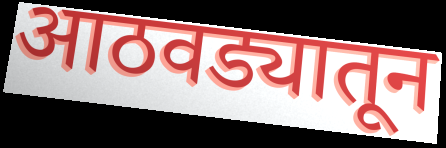
आठवड्यातून